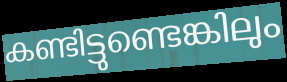
കണ്ടിട്ടുണ്ടെങ്കിലും